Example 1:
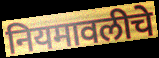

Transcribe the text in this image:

नियमावलीचे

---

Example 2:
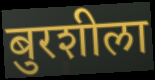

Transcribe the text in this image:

बुरशीला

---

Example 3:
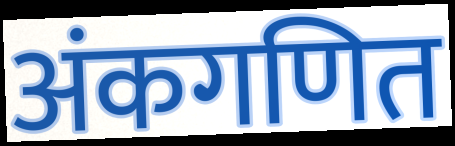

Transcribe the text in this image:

अंकगणित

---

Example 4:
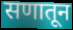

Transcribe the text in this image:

सणातून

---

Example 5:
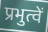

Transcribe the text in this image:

प्रभुत्वें